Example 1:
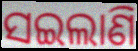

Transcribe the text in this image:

ସଇଲାଣି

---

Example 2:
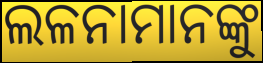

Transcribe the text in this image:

ଲଳନାମାନଙ୍କୁ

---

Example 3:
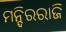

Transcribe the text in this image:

ମନ୍ଦିରରାଜି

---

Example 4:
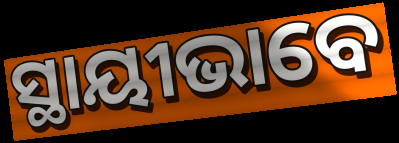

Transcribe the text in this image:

ସ୍ଥାୟୀଭାବେ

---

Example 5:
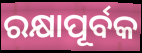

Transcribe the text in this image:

ରକ୍ଷାପୂର୍ବକ